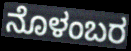
ನೊಳಂಬರ